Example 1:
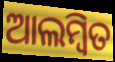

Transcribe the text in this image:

ଆଲମ୍ୱିତ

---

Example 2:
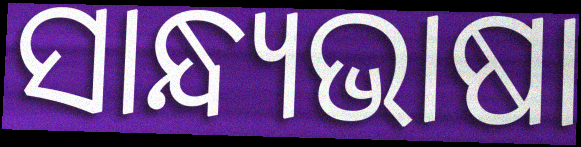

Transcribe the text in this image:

ସାନ୍ଧ୍ୟଭାଷା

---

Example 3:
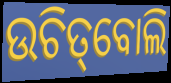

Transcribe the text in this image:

ଉଚିତ୍‌ବୋଲି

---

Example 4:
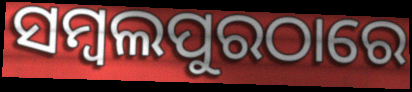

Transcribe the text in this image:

ସମ୍ବଲପୁରଠାରେ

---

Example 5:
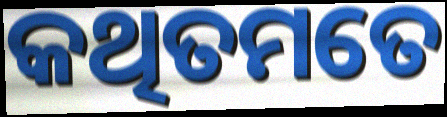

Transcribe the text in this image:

କଥିତମତେ